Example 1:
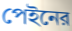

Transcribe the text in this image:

পেইনের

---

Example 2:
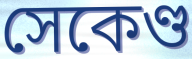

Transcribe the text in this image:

সেকেণ্ড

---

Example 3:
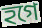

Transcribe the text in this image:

হগে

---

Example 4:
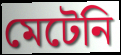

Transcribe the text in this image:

মেটেনি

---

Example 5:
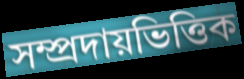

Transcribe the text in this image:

সম্প্রদায়ভিত্তিক